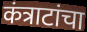
कंत्राटांचा